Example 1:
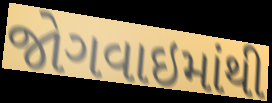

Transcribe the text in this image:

જોગવાઇમાંથી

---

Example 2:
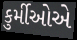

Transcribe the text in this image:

કુર્મીઓએ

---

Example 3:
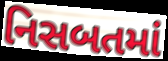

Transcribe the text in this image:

નિસબતમાં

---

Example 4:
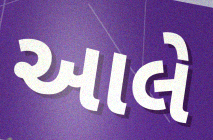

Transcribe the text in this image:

આલે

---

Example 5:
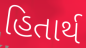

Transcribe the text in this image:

હિતાર્થ